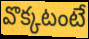
వొక్కటంటే